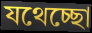
যথেচ্ছো